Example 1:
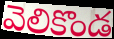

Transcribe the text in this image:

వెలికొండ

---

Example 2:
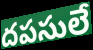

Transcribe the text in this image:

దపసులే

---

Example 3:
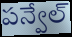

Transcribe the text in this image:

పన్వేల్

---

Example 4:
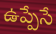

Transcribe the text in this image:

ఉప్పేసే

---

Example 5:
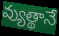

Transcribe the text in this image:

వ్యుత్థానే